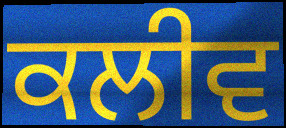
ਕਲੀਵ